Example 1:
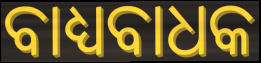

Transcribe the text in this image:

ବାଧ୍ୟବାଧକ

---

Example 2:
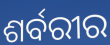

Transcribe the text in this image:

ଶର୍ବରୀର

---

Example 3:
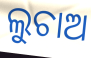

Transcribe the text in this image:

ଲୁଚାଅ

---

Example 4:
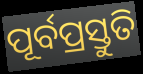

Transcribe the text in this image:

ପୂର୍ବପ୍ରସ୍ତୁତି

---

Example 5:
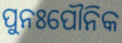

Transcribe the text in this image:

ପୁନଃପୌନିକ